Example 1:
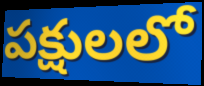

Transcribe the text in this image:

పక్షులలో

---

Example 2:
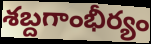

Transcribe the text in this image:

శబ్దగాంభీర్యం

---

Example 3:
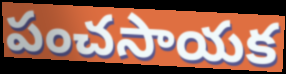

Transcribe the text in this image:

పంచసాయక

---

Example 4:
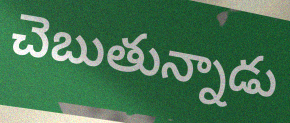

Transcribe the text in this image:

చెబుతున్నాడు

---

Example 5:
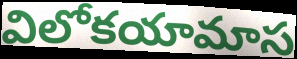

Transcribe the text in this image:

విలోకయామాస